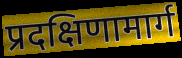
प्रदक्षिणामार्ग